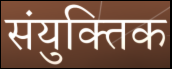
संयुक्‍तिक